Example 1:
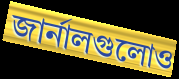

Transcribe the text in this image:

জার্নালগুলোও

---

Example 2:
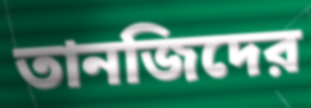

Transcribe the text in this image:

তানজিদের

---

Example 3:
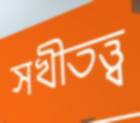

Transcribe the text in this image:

সখীতত্ত্ব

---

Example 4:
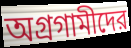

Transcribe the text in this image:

অগ্রগামীদের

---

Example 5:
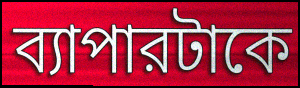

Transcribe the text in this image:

ব্যাপারটাকে